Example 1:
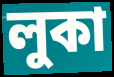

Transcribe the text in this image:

লুকা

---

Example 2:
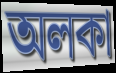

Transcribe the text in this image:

অলকা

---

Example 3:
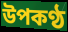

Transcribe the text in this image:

উপকণ্ঠ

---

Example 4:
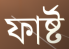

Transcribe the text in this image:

ফাৰ্ষ্ট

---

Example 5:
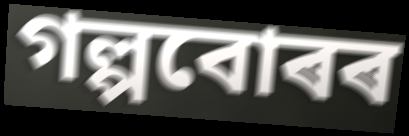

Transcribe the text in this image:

গল্পবোৰৰ